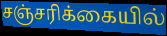
சஞ்சரிக்கையில்